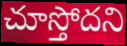
చూస్తోదని